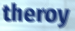
theroy